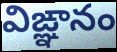
విఙ్ఞానం